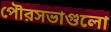
পৌরসভাগুলো